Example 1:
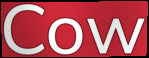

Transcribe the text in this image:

Cow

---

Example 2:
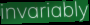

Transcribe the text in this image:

invariably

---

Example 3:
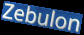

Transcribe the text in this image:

Zebulon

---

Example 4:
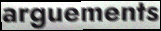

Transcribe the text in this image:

arguements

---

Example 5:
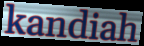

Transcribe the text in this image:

kandiah